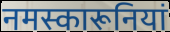
नमस्कारूनियां